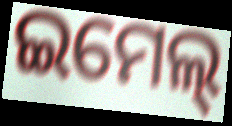
ଇମେଲ୍